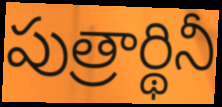
పుత్రార్థినీ